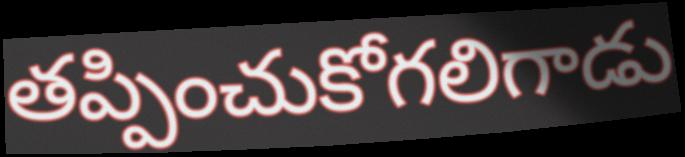
తప్పించుకోగలిగాడు